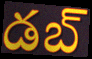
డబ్